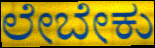
ಲೇಬೇಕು